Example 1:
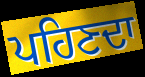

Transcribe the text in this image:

ਪਹਿਣਦਾ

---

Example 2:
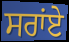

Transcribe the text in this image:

ਸਰਾਂਏ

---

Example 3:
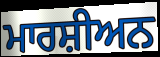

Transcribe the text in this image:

ਮਾਰਸ਼ੀਅਨ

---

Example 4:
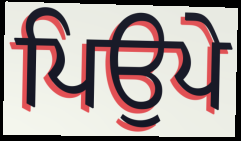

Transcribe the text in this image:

ਪਿਉਪੇ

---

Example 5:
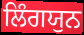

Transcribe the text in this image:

ਲਿੰਗਯੁਨ